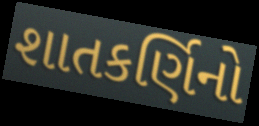
શાતકર્ણિનો